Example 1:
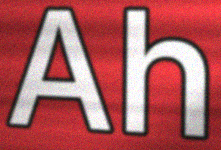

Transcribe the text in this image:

Ah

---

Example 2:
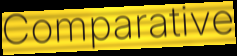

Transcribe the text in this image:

Comparative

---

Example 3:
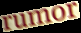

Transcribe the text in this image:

rumor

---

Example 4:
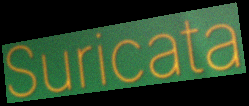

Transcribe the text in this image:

Suricata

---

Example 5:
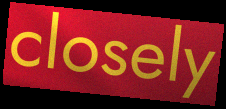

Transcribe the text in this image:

closely